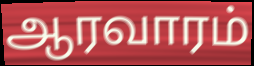
ஆரவாரம்